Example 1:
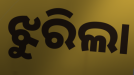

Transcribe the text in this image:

ଝୁରିଲା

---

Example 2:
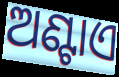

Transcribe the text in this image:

ଅଣ୍ଟାଏ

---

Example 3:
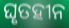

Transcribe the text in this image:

ଘୃତହୀନ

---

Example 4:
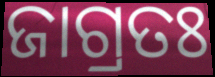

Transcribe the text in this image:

ଜାଗ୍ରତଃ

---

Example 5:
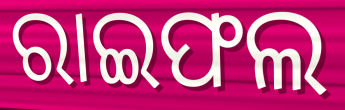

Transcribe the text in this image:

ରାଇଫଲ